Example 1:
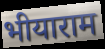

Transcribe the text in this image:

भीयाराम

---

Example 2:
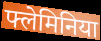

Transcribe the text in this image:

फ्लेमिनिया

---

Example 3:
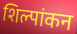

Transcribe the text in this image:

शिल्पांकन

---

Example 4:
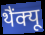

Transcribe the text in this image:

थैंक्यू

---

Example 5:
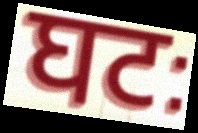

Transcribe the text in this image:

घटः